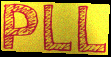
PLL